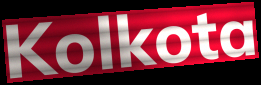
Kolkota